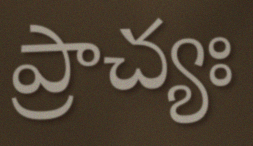
ప్రాచ్యః